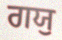
ਗਯੁ